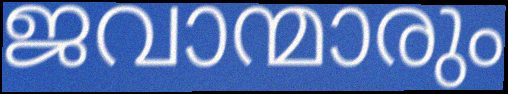
ജവാന്മാരും